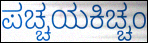
ಪಚ್ಚಯಕಿಚ್ಚಂ